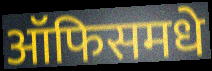
ऑफिसमधे